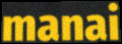
manai